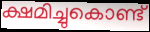
ക്ഷമിച്ചുകൊണ്ട്